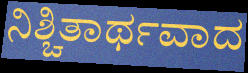
ನಿಶ್ಚಿತಾರ್ಥವಾದ